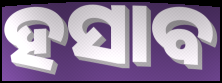
ହସାବ